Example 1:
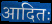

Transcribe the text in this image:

आदितः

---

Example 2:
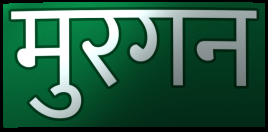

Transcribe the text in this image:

मुरगन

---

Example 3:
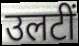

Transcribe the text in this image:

उलटीं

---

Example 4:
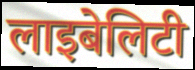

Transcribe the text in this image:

लाइबेलिटी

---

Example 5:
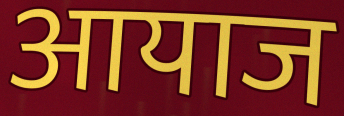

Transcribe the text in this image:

आयाज